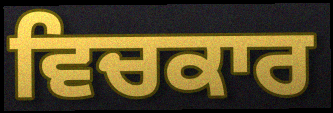
ਵਿਚਕਾਰ